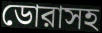
ডোরাসহ